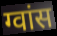
ग्वांस